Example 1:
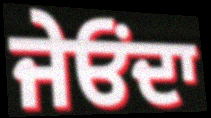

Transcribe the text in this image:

ਜੇਓੰਦਾ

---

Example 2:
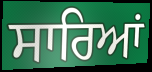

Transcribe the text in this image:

ਸਾਰਿਆਂ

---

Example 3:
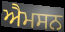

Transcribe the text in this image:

ਐਮਸਨ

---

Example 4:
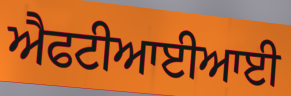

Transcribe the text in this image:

ਐਫਟੀਆਈਆਈ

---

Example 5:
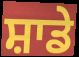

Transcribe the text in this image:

ਸ਼ਾਡੇ